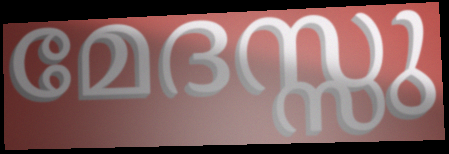
മേദസ്സു